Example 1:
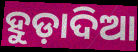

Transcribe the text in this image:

ହୁଡ଼ାଦିଆ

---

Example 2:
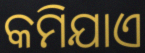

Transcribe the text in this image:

କମିଯାଏ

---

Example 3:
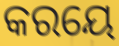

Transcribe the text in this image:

କରୟେ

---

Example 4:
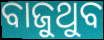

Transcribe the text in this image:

ବାଜୁଥୁବ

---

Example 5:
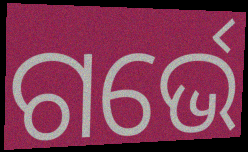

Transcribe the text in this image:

ଗର୍ଭେ